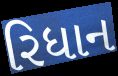
રિધાન